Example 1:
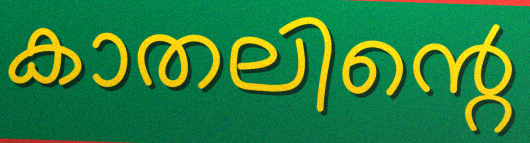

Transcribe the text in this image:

കാതലിന്റെ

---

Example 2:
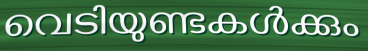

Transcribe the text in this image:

വെടിയുണ്ടകൾക്കും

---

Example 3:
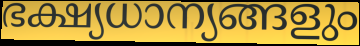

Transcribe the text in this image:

ഭക്ഷ്യധാന്യങ്ങളും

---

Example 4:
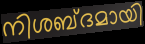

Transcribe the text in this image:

നിശബ്ദമായി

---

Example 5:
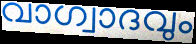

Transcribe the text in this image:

വാഗ്വാദവും